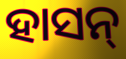
ହାସନ୍